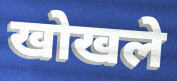
खोखले